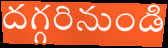
దగ్గరినుండి